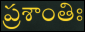
ప్రశాంతిః